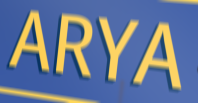
ARYA